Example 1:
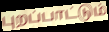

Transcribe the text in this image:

புறப்பாட்டும்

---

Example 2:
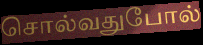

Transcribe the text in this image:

சொல்வதுபோல்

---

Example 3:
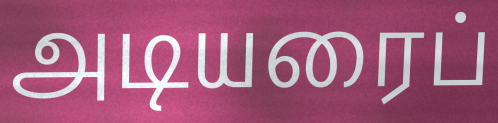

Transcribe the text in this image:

அடியரைப்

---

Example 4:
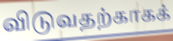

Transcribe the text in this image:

விடுவதற்காகக்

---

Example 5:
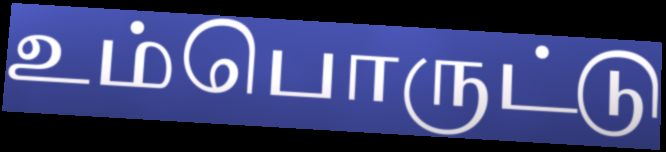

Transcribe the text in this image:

உம்பொருட்டு